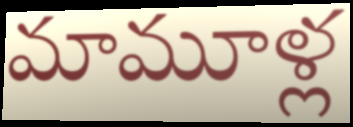
మామూళ్ల